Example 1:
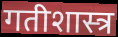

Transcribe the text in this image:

गतीशास्त्र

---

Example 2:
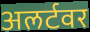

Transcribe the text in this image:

अलर्टवर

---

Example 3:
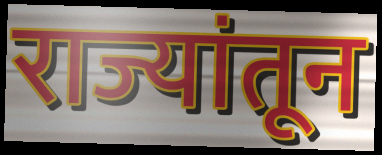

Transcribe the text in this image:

राज्यांतून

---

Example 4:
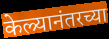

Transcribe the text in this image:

केल्यानंतरच्या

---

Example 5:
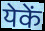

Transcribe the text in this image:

येकें